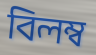
বিলম্ব